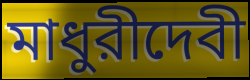
মাধুরীদেবী